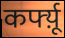
कर्फ्य़ू